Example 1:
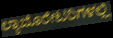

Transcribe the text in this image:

ಲ್ಯಾಬೊರೇಟರಿಗಳಲ್ಲಿ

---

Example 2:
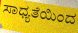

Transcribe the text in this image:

ಸಾಧ್ಯತೆಯಿಂದ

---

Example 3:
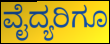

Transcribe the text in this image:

ವೈದ್ಯರಿಗೂ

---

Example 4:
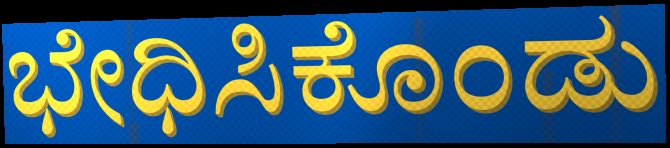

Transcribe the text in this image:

ಭೇಧಿಸಿಕೊಂಡು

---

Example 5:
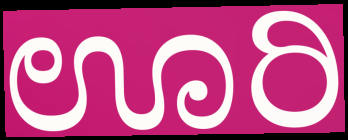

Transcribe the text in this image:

ಊರಿ